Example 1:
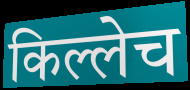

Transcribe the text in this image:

किल्लेच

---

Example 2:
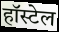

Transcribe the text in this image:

हॉस्टेल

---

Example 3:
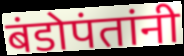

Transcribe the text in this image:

बंडोपंतांनी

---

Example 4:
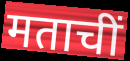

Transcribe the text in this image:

मताचीं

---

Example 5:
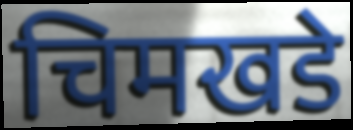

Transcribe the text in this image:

चिमखडे